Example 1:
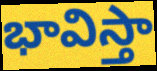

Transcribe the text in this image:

భావిస్తా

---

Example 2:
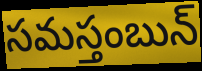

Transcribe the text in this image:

సమస్తంబున్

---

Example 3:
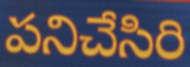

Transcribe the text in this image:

పనిచేసిరి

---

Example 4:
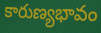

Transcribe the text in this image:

కారుణ్యభావం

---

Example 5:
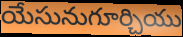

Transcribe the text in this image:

యేసునుగూర్చియు